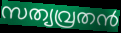
സത്യവ്രതൻ